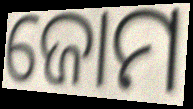
ଜୋମ